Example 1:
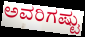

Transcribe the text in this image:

ಅವರಿಗಷ್ಟು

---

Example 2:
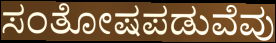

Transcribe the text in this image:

ಸಂತೋಷಪಡುವೆವು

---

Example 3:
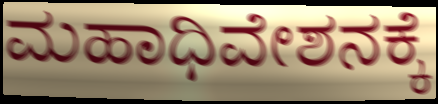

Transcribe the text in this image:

ಮಹಾಧಿವೇಶನಕ್ಕೆ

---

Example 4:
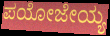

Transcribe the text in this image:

ಪಯೋಜೇಯ್ಯ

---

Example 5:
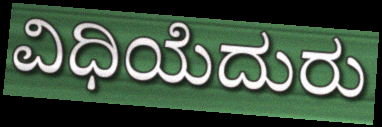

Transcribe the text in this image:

ವಿಧಿಯೆದುರು